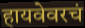
हायवेवरचं